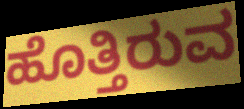
ಹೊತ್ತಿರುವ